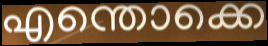
എന്തൊക്കെ